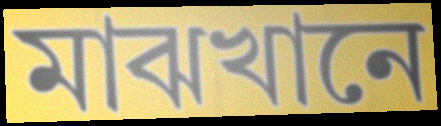
মাঝখানে